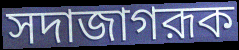
সদাজাগরূক